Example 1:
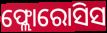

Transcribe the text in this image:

ଫ୍ଲୋରୋସିସ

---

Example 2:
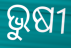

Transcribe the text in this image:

ଭୁଷୀ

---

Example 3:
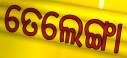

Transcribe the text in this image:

ତେଲେଙ୍ଗା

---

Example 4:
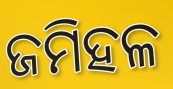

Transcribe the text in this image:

ଜମିହଳ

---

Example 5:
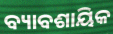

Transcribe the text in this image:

ବ୍ୟାବଶାୟିକ